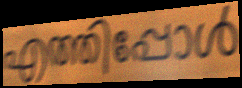
എത്തിപ്പോൾ